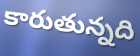
కారుతున్నది